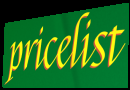
pricelist